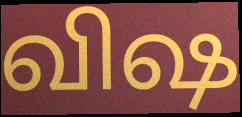
விஷ